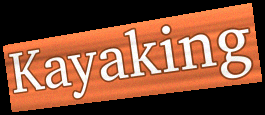
Kayaking